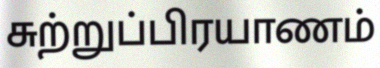
சுற்றுப்பிரயாணம்